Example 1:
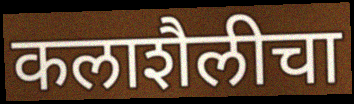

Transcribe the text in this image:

कलाशैलीचा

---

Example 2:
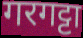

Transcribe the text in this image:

गरगट्टा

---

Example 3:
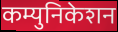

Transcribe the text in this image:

कम्युनिकेशन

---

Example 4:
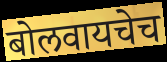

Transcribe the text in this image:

बोलवायचेच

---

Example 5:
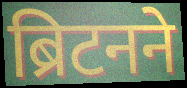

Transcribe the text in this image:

ब्रिटनने